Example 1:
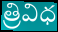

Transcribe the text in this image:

త్రివిధ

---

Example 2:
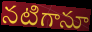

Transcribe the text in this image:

నటిగానూ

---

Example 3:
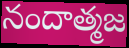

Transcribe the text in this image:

నందాత్మజ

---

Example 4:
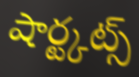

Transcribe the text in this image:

షార్ట్కట్స్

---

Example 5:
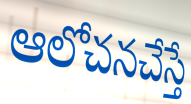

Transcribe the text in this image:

ఆలోచనచేస్తే